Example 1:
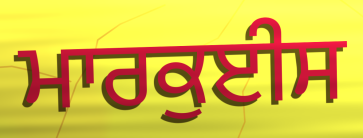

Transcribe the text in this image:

ਮਾਰਕੁਈਸ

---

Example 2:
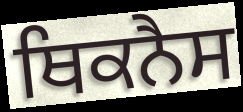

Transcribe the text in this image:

ਥਿਕਨੈਸ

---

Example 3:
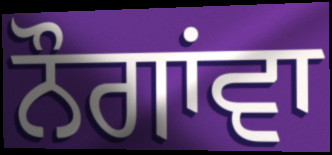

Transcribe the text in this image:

ਨੌਗਾਂਵਾ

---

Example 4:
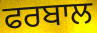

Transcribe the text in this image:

ਫਰਬਾਲ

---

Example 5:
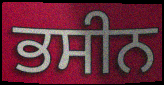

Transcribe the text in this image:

ਭਸੀਨ